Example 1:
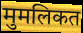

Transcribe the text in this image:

मुमलिकत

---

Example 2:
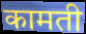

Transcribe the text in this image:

कामती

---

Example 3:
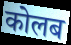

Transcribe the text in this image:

कोलब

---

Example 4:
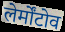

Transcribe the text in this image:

लेर्मोंटोव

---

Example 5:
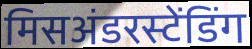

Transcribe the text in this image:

मिसअंडरस्टेंडिंग